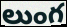
లుంగ